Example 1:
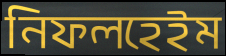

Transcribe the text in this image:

নিফলহেইম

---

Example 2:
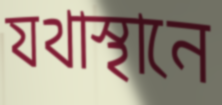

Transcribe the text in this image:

যথাস্থানে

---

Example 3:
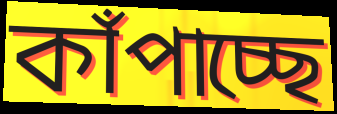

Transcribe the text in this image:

কাঁপাচ্ছে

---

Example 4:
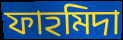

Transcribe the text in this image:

ফাহমিদা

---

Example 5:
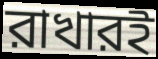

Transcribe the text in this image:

রাখারই